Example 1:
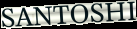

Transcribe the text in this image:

SANTOSHI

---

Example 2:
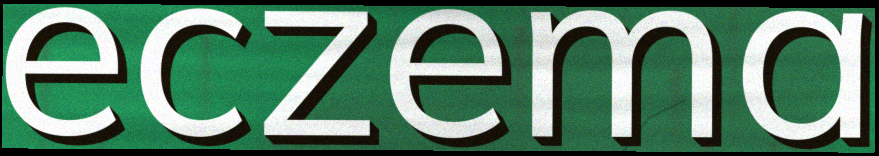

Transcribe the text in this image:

eczema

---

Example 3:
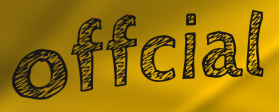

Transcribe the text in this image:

offcial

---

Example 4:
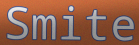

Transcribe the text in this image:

Smite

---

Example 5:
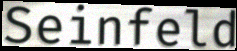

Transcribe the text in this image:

Seinfeld